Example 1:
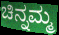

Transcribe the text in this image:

ಚಿನ್ನಮ್ಮ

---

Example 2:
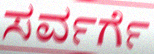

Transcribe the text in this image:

ಸರ್ವರ್ಗೆ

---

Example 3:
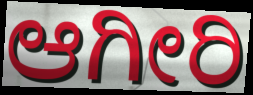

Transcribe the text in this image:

ಆಗೀರಿ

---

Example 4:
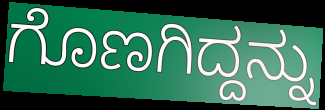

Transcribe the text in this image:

ಗೊಣಗಿದ್ದನ್ನು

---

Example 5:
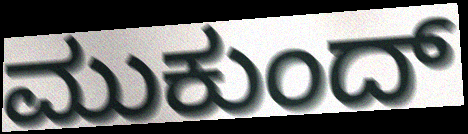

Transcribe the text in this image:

ಮುಕುಂದ್